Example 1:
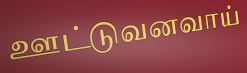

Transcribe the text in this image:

ஊட்டுவனவாய்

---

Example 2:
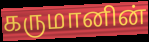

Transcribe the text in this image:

கருமானின்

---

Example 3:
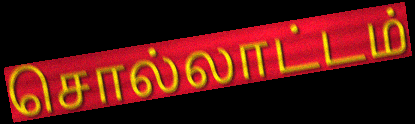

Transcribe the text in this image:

சொல்லாட்டம்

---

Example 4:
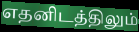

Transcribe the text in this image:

எதனிடத்திலும்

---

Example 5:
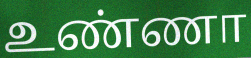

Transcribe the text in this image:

உண்ணா